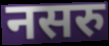
नसरु